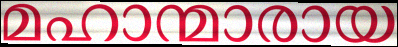
മഹാന്മാരായ